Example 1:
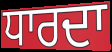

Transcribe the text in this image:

ਧਾਰਦਾ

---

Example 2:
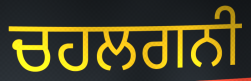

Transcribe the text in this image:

ਚਹਲਗਨੀ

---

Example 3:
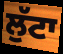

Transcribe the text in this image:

ਲੁੱਟਾ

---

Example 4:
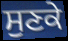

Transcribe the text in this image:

ਸੁਣਕੇ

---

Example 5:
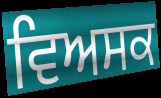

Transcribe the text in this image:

ਵਿਅਸਕ